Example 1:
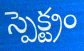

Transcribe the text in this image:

స్పెక్ట్రం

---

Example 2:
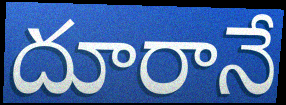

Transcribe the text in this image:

దూరానే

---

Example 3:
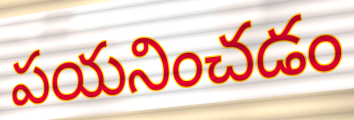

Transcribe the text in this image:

పయనించడం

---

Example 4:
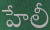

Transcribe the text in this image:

హేలీ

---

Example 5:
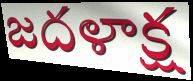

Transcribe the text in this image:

జదళాక్ష